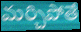
మర్చిపోతే